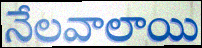
నేలవాలాయి